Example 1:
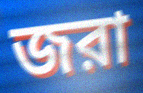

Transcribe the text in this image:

জরা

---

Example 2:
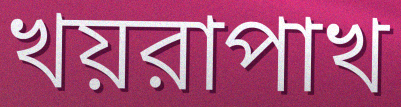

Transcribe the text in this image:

খয়রাপাখ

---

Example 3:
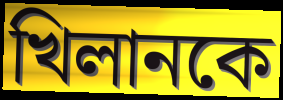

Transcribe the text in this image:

খিলানকে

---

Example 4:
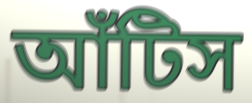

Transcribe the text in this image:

আঁটিস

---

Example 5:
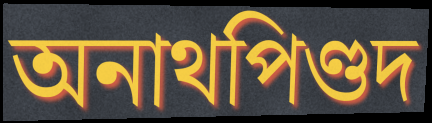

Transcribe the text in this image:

অনাথপিণ্ডদ